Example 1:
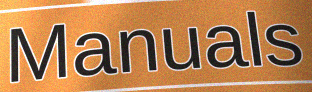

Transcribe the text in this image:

Manuals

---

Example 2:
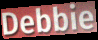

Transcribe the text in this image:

Debbie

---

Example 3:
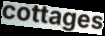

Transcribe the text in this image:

cottages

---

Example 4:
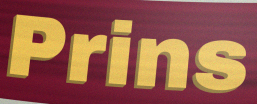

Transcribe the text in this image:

Prins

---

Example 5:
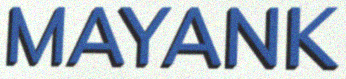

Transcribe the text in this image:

MAYANK